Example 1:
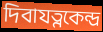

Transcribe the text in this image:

দিবাযত্নকেন্দ্র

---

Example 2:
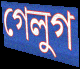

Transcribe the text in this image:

গেলুগ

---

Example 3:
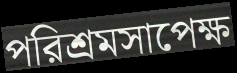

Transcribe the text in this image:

পরিশ্রমসাপেক্ষ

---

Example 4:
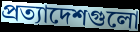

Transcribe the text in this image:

প্রত্যাদেশগুলো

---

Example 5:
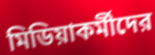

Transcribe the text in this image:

মিডিয়াকর্মীদের